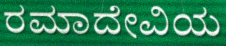
ರಮಾದೇವಿಯ